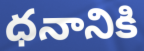
ధనానికి